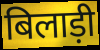
बिलाड़ी